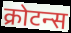
क्रोटन्स